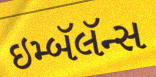
ઇમ્બૅલૅન્સ